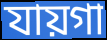
যায়গা